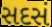
સદસં